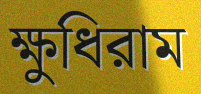
ক্ষুধিরাম